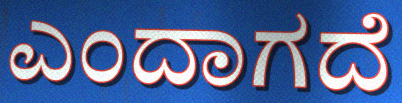
ಎಂದಾಗದೆ